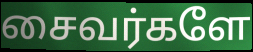
சைவர்களே